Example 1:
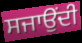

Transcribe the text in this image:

ਸਜਾਉਂਦੀ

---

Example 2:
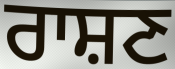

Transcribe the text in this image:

ਰਾਸ਼ਣ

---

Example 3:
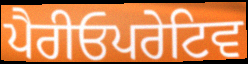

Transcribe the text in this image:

ਪੈਰੀਓਪਰੇਟਿਵ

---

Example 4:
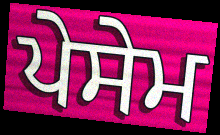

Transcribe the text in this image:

ਪੇਸੇਮ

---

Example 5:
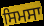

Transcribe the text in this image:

ਸਿਮਸਾ